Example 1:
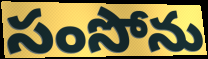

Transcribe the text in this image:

సంసోను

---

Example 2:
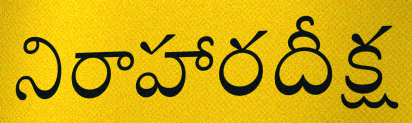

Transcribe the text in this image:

నిరాహారదీక్ష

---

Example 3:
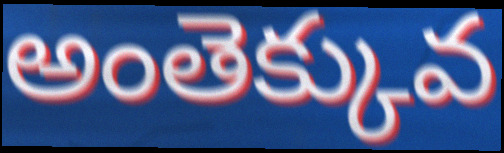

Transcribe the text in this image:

అంతెక్కువ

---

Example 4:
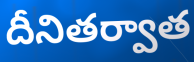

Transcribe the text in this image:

దీనితర్వాత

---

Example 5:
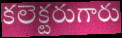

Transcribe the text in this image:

కలెక్టరుగారు